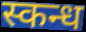
स्कन्ध